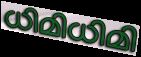
ധിമിധിമി